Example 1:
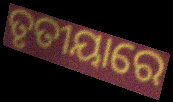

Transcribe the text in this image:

ତୃତୀୟାରେ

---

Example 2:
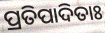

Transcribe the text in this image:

ପ୍ରତିପାଦିତାଃ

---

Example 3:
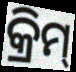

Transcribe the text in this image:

କ୍ରିମ୍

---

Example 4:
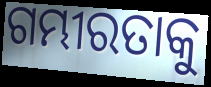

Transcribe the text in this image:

ଗମ୍ଭୀରତାକୁ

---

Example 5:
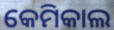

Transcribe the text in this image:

କେମିକାଲ